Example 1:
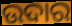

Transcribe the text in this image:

ଉଦାର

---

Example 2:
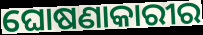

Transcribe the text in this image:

ଘୋଷଣାକାରୀର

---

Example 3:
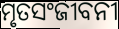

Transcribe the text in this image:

ମୃତସଂଜୀବନୀ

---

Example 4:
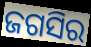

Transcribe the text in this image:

ଜଗସିର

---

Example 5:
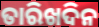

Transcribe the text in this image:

ତାରିଖଦିନ